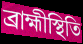
ব্রাহ্মীস্থিতি